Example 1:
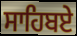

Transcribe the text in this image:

ਸਾਹਿਬਏ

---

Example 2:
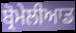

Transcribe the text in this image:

ਬ੍ਰੋਮੇਲੀਆਡ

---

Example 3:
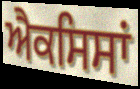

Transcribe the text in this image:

ਐਕਸਿਸਾਂ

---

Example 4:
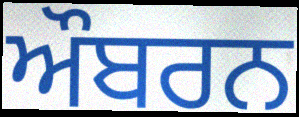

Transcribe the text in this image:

ਔਬਰਨ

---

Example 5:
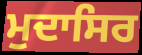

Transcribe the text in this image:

ਮੁਦਾਸਿਰ